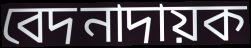
বেদনাদায়ক